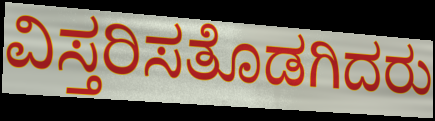
ವಿಸ್ತರಿಸತೊಡಗಿದರು